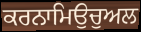
ਕਰਨਾਮਿਉਚੁਅਲ